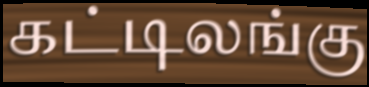
கட்டிலங்கு